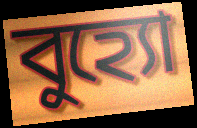
বুহ্যো